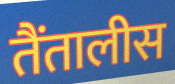
तैंतालीस